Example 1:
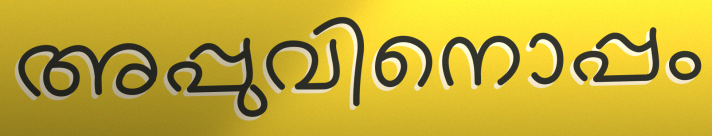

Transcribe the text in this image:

അപ്പുവിനൊപ്പം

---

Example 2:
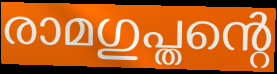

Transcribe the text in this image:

രാമഗുപ്തന്റെ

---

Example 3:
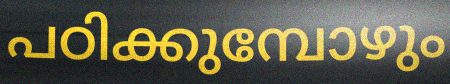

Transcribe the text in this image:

പഠിക്കുമ്പോഴും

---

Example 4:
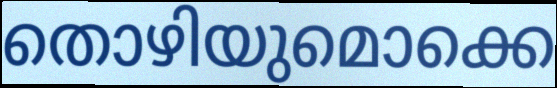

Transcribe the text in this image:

തൊഴിയുമൊക്കെ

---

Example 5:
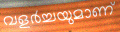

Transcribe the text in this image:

വളർച്ചയുമാണ്